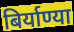
बिर्याण्या